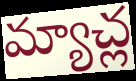
మ్యాచ్ల